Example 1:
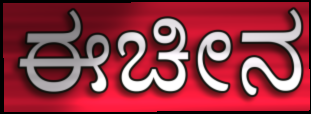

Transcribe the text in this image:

ಈಚೀನ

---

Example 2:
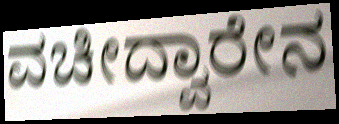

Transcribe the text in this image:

ವಚೀದ್ವಾರೇನ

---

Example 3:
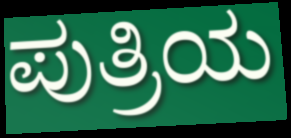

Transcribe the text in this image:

ಪುತ್ರಿಯ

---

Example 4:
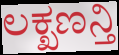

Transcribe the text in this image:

ಲಕ್ಖಣನ್ತಿ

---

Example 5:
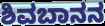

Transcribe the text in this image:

ಶಿವಬಾನನ